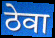
ठेवा